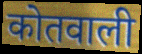
कोतवाली